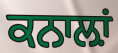
ਕਨਾਲ਼ਾਂ